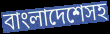
বাংলাদেশেসহ